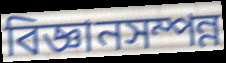
বিজ্ঞানসম্পন্ন